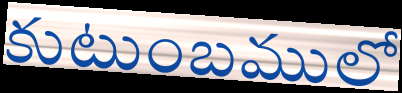
కుటుంబములో